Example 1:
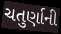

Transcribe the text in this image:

ચતુર્ણાની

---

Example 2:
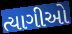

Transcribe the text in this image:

ત્યાગીઓ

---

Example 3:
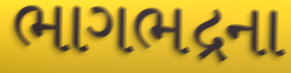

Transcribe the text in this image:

ભાગભદ્રના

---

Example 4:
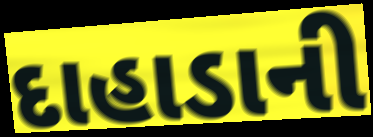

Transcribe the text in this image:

દાહાડાની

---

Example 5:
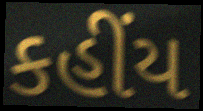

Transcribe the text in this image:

કહીંય